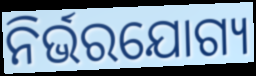
ନିର୍ଭରଯୋଗ୍ୟ